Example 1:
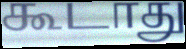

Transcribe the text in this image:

கூடாது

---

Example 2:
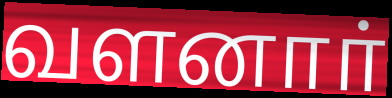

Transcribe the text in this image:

வளனார்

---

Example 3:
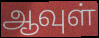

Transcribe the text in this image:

ஆவுள்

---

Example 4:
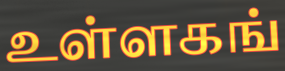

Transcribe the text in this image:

உள்ளகங்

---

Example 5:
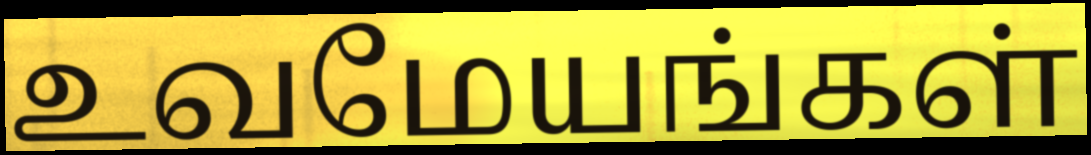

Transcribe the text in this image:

உவமேயங்கள்